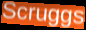
Scruggs